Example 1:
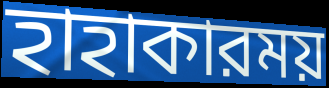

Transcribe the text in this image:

হাহাকারময়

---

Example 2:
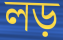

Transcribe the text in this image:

লড়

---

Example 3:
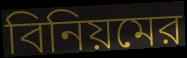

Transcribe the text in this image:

বিনিয়মের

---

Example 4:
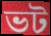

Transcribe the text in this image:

ভট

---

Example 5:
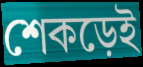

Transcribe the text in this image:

শেকড়েই